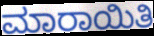
ಮಾರಾಯಿತಿ